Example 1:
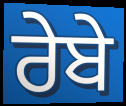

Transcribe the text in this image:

ਰੇਬੇ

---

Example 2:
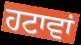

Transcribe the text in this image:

ਹਟਾਵਾਂ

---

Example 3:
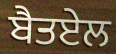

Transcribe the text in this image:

ਬੈਤਏਲ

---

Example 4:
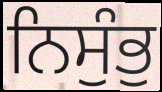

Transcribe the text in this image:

ਨਿਸੁੰਭੁ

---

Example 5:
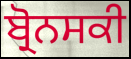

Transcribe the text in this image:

ਬ੍ਰੋਨਸਕੀ